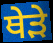
ਥੇੜੇ